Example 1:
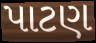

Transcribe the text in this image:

પાટણ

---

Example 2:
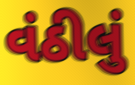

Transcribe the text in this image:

વંઠીલું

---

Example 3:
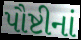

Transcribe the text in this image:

પૌષ્ટીનાં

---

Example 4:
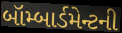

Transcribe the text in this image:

બૉમ્બાર્ડમેન્ટની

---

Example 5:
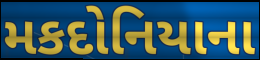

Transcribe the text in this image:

મકદોનિયાના